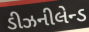
ડીઝનીલેન્ડ